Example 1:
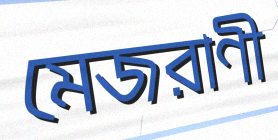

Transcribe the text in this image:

মেজরাণী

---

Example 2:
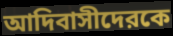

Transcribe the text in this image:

আদিবাসীদেরকে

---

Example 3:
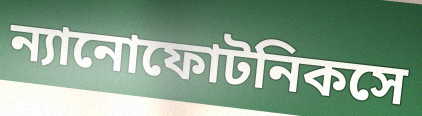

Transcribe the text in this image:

ন্যানোফোটনিকসে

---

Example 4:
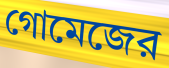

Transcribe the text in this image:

গোমেজের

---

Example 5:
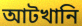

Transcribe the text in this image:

আটখানি